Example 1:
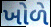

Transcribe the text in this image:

ખોળે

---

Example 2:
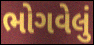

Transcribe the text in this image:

ભોગવેલું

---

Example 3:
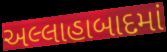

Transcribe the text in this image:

અલ્લાહાબાદમાં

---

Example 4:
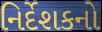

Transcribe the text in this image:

નિર્દેશકનો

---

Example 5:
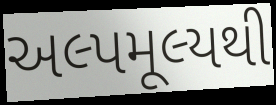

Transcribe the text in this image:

અલ્પમૂલ્યથી